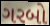
ગરબો